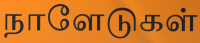
நாளேடுகள்